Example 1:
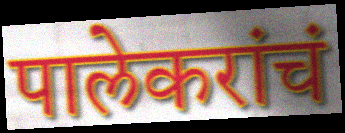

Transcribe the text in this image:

पालेकरांचं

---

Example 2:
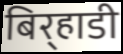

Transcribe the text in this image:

बिर्‍हाडी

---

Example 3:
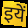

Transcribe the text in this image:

इयें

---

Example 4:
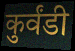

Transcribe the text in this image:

कुर्वंडी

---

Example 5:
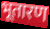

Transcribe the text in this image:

भूतारण